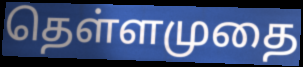
தெள்ளமுதை